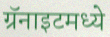
ग्रॅनाइटमध्ये